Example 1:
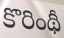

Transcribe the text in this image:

కొరింథీ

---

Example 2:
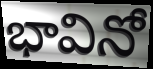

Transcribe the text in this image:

భావినో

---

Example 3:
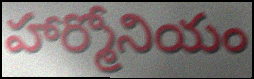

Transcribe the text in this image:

హార్మోనియం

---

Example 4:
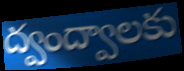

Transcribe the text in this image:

ద్వంద్వాలకు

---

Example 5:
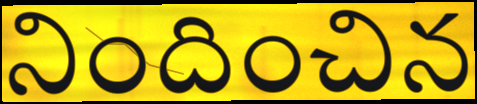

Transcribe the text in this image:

నిందించిన